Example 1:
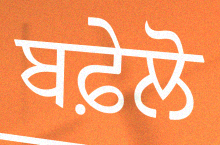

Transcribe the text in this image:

ਬਫ਼ੇਲੋ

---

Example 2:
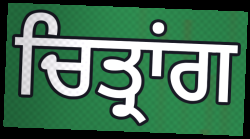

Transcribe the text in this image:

ਚਿਤ੍ਰਾਂਗ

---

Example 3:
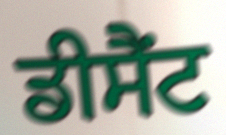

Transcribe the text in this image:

ਡੀਸੈਂਟ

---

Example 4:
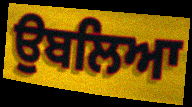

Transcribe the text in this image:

ਉਬਲਿਆ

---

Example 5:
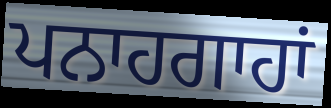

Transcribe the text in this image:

ਪਨਾਹਗਾਹਾਂ